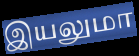
இயலுமா